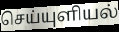
செய்யுளியல்